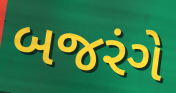
બજરંગે